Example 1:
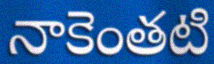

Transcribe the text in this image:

నాకెంతటి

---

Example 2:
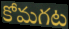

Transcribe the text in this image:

కోమగట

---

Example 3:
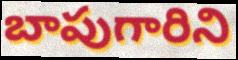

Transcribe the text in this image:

బాపుగారిని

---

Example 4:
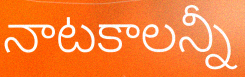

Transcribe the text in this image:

నాటకాలన్నీ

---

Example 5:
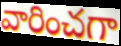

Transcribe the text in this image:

వారించగా